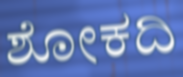
ಶೋಕದಿ